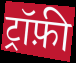
ट्रॉफ़ी